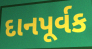
દાનપૂર્વક